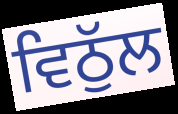
ਵਿਠੁੱਲ